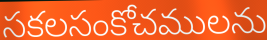
సకలసంకోచములను